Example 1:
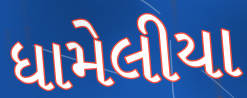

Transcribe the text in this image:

ધામેલીયા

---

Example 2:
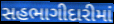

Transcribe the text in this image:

સહભાગીદારીમાં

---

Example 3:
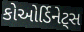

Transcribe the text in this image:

કોઓર્ડિનેટ્સ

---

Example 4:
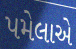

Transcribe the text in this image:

પમેલાએ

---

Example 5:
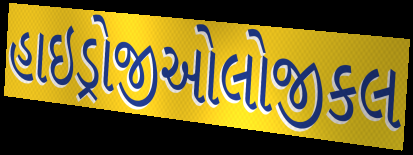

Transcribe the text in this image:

હાઇડ્રોજીઓલોજીકલ